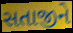
સતાજીને